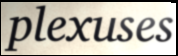
plexuses